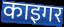
काइगर